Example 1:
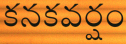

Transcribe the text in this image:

కనకవర్షం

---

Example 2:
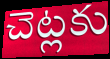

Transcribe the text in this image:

చెట్లకు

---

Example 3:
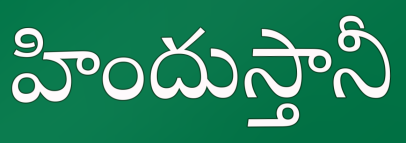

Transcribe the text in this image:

హిందుస్తానీ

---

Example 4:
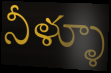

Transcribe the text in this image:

నీళ్ళూ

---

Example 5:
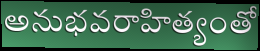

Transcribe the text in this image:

అనుభవరాహిత్యంతో